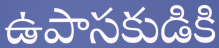
ఉపాసకుడికి